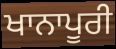
ਖਾਨਾਪੂਰੀ